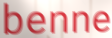
benne